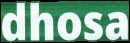
dhosa